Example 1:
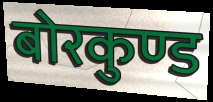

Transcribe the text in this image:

बोरकुण्ड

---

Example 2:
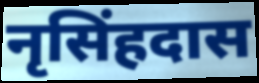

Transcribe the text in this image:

नृसिंहदास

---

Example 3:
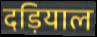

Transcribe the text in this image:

दड़ियाल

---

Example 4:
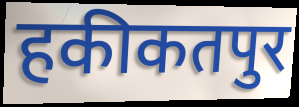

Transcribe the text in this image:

हकीकतपुर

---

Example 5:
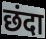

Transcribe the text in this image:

छंदा